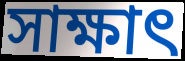
সাক্ষাৎ